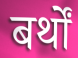
बर्थों